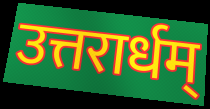
उत्तरार्धम्